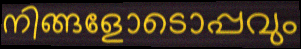
നിങ്ങളോടൊപ്പവും